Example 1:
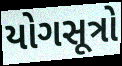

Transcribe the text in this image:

યોગસૂત્રો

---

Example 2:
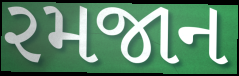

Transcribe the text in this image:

રમજાન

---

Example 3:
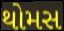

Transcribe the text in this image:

થોમસ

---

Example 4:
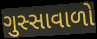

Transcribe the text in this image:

ગુસ્સાવાળો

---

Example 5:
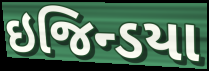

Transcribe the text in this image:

ઇજિન્ડયા